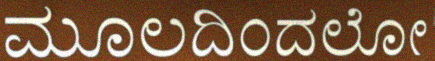
ಮೂಲದಿಂದಲೋ